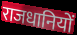
राजधानियों